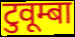
टुवूम्बा